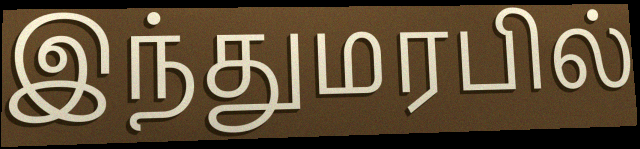
இந்துமரபில்